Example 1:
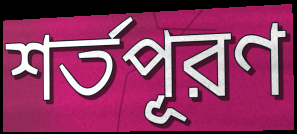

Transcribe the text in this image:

শর্তপূরণ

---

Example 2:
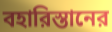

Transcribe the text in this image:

বহারিস্তানের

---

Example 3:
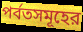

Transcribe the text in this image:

পর্বতসমূহের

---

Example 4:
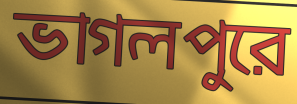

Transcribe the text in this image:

ভাগলপুরে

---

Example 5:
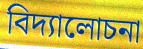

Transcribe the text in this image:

বিদ্যালোচনা